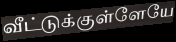
வீட்டுக்குள்ளேயே